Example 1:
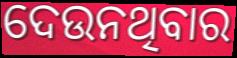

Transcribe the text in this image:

ଦେଉନଥିବାର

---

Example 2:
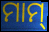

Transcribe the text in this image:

ମାମ୍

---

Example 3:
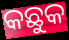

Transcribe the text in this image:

କଛୁକ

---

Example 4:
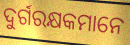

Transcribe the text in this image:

ଦୁର୍ଗରକ୍ଷକମାନେ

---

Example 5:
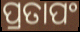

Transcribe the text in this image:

ପ୍ରତାପଂ